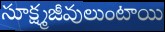
సూక్ష్మజీవులుంటాయి